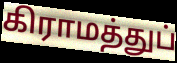
கிராமத்துப்